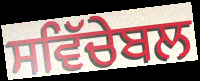
ਸਵਿੱਚੇਬਲ